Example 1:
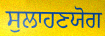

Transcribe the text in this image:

ਸੁਲਾਹਣਯੋਗ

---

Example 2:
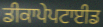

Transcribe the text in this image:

ਡੀਕਾਪੇਪਟਾਈਡ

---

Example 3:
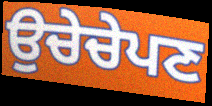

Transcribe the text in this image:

ਉਚੇਚੇਪਣ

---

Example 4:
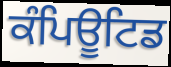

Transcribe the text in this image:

ਕੰਪਿਊਟਿਡ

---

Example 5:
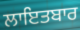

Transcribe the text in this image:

ਲਾਇਤਬਾਰ